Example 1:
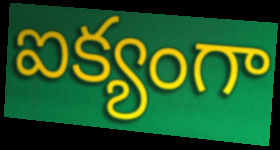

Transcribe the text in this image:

ఐక్యంగా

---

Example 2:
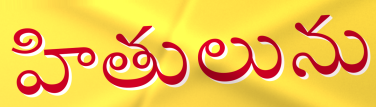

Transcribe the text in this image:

హితులును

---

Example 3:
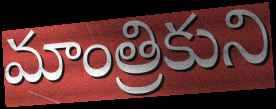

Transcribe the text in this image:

మాంత్రికుని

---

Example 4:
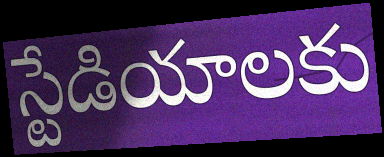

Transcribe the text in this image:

స్టేడియాలకు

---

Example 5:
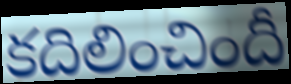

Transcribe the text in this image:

కదిలించిందీ